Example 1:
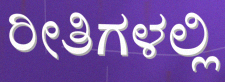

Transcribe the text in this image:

ರೀತಿಗಳಲ್ಲಿ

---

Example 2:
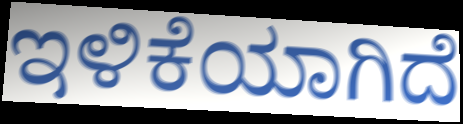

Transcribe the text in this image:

ಇಳಿಕೆಯಾಗಿದೆ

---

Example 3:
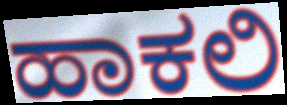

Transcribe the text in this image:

ಹಾಕಲಿ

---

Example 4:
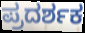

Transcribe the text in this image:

ಪ್ರದರ್ಶಕ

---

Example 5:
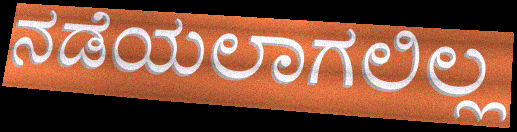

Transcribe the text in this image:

ನಡೆಯಲಾಗಲಿಲ್ಲ